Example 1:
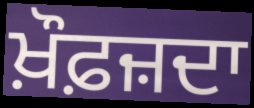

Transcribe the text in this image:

ਖ਼ੌਫ਼ਜ਼ਦਾ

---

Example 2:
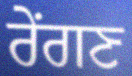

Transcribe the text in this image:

ਰੇਂਗਣ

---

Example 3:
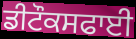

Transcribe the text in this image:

ਡੀਟੌਕਸਫਾਈ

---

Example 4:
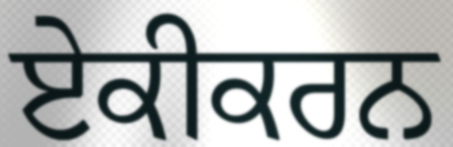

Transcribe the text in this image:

ਏਕੀਕਰਨ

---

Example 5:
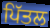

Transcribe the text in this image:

ਪਿੱਤਲ